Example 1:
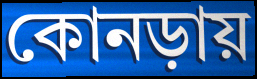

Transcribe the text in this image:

কোনড়ায়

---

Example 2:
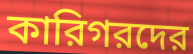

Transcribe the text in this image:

কারিগরদের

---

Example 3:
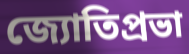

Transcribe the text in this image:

জ্যোতিপ্রভা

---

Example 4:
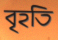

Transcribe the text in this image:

বৃহতি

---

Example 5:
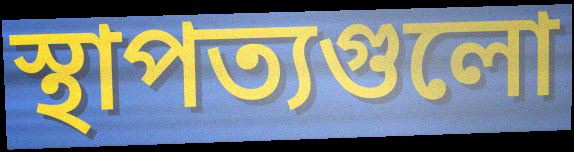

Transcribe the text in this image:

স্থাপত্যগুলো